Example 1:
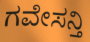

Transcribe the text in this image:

ಗವೇಸನ್ತಿ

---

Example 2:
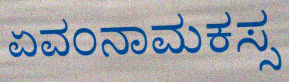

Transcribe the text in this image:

ಏವಂನಾಮಕಸ್ಸ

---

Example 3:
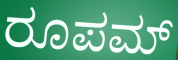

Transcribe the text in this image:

ರೂಪಮ್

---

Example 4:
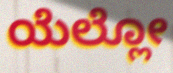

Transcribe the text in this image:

ಯೆಲ್ಲೋ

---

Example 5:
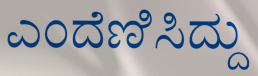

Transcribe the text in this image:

ಎಂದೆಣಿಸಿದ್ದು